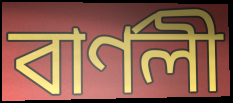
বাৰ্ণলী